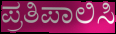
ಪ್ರತಿಪಾಲಿಸಿ